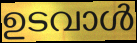
ഉടവാൾ